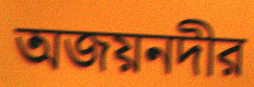
অজয়নদীর